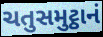
ચતુસમુટ્ઠાનં